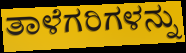
ತಾಳೆಗರಿಗಳನ್ನು